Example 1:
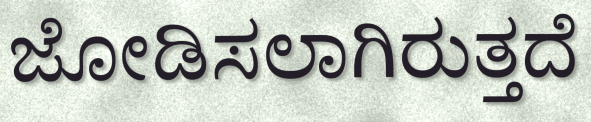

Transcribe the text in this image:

ಜೋಡಿಸಲಾಗಿರುತ್ತದೆ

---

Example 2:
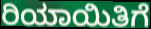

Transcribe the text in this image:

ರಿಯಾಯಿತಿಗೆ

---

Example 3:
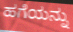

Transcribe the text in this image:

ಹಗೆಯನ್ನು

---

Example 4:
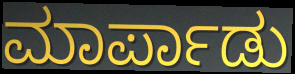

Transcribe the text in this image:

ಮಾರ್ಪಾಡು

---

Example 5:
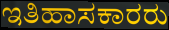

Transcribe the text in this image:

ಇತಿಹಾಸಕಾರರು